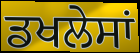
ਡਖਲੇਸਾਂ